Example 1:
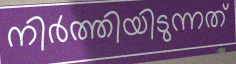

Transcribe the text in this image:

നിർത്തിയിടുന്നത്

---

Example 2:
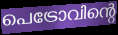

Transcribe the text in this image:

പെട്രോവിന്റെ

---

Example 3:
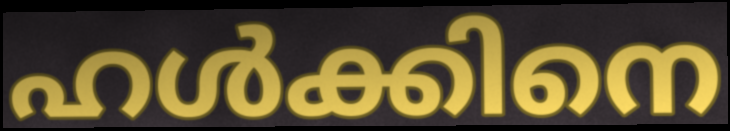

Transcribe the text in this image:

ഹൾക്കിനെ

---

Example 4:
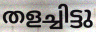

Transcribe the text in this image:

തളച്ചിട്ടു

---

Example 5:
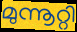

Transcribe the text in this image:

മുന്നൂറ്റി